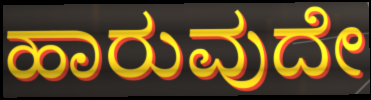
ಹಾರುವುದೇ